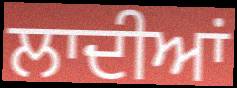
ਲਾਦੀਆਂ